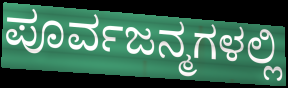
ಪೂರ್ವಜನ್ಮಗಳಲ್ಲಿ